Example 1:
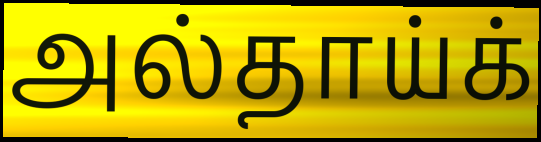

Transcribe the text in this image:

அல்தாய்க்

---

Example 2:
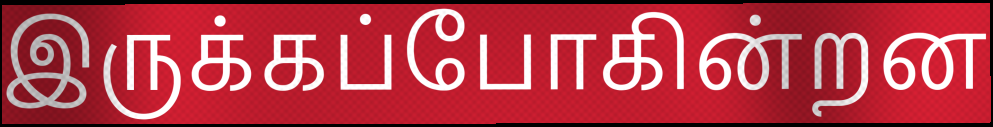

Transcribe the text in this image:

இருக்கப்போகின்றன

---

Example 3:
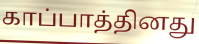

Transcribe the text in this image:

காப்பாத்தினது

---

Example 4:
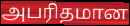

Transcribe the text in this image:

அபரிதமான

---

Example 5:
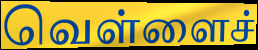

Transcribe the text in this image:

வெள்ளைச்